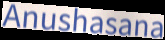
Anushasana